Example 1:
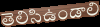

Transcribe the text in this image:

తెలిసిఉండాలి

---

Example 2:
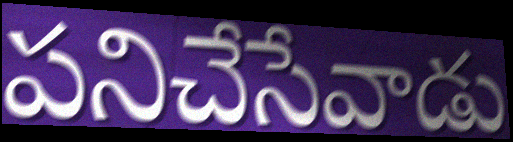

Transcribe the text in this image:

పనిచేసేవాడు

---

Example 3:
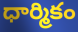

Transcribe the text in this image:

ధార్మికం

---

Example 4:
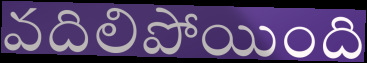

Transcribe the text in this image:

వదిలిపోయింది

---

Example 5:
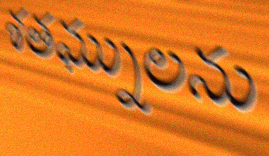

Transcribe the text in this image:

శతఘ్నులను